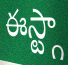
ఈస్ట్గా